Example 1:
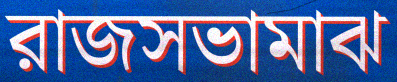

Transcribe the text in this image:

রাজসভামাঝ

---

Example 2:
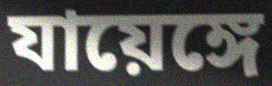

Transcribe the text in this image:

যায়েঙ্গে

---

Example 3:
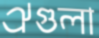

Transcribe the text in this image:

ঐগুলা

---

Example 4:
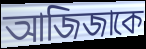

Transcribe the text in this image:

আজিজাকে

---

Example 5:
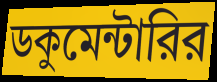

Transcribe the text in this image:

ডকুমেন্টারির